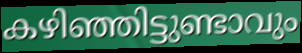
കഴിഞ്ഞിട്ടുണ്ടാവും